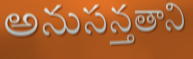
అనుసన్తతాని